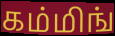
கம்மிங்